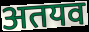
अतयव